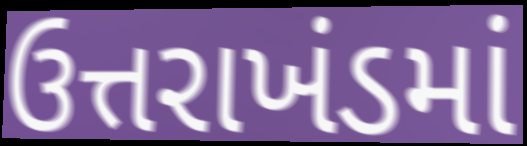
ઉત્તરાખંડમાં